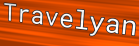
Travelyan